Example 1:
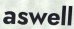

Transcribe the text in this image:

aswell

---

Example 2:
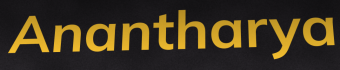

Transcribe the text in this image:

Anantharya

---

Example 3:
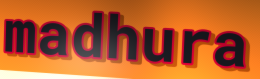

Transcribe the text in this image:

madhura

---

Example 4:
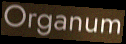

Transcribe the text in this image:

Organum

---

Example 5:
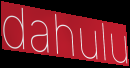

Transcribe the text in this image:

dahulu